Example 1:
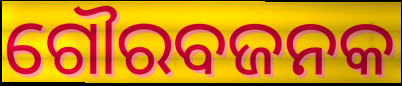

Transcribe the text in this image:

ଗୌରବଜନକ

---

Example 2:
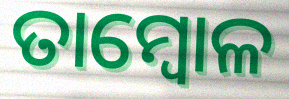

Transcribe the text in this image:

ତାମ୍ବୋଳ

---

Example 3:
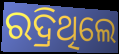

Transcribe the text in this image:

ରଦ୍ରିଥିଲେ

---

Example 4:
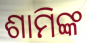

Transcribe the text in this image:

ଶାମିଙ୍କ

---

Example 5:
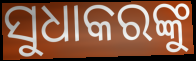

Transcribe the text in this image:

ସୁଧାକରଙ୍କୁ